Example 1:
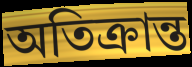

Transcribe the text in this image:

অতিক্ৰান্ত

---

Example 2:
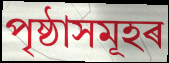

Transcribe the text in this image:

পৃষ্ঠাসমূহৰ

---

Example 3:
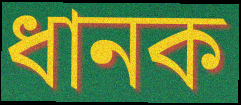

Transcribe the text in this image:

ধানক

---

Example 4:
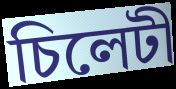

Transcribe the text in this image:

চিলেটী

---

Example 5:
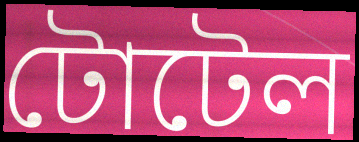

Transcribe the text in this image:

টোটেল